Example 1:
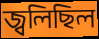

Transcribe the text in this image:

জ্বলিছিল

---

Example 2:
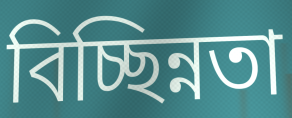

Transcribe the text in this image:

বিচ্ছিন্নতা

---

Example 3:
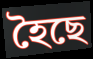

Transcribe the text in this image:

হৈছে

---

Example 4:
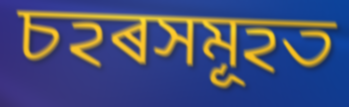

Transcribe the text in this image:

চহৰসমূহত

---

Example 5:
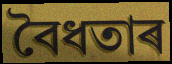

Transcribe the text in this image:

বৈধতাৰ